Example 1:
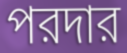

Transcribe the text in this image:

পরদার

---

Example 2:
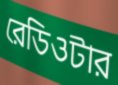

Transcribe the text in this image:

রেডিওটার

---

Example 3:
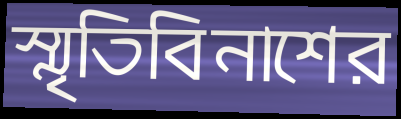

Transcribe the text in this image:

স্মৃতিবিনাশের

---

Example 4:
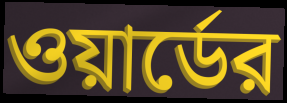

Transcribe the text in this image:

ওয়ার্ডের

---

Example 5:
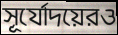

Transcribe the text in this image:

সূর্যোদয়েরও